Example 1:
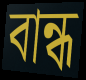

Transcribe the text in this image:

বান্ধ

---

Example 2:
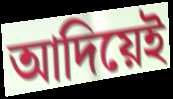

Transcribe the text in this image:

আদিয়েই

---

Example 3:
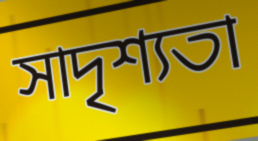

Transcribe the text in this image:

সাদৃশ্যতা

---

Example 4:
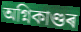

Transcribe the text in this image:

অগ্নিকাণ্ডৰ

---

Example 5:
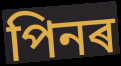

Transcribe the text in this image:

পিনৰ